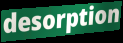
desorption